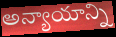
అన్యాయాన్ని